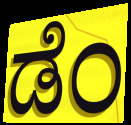
ಡೆಂ